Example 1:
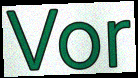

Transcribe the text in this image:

Vor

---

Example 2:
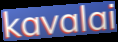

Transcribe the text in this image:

kavalai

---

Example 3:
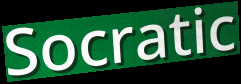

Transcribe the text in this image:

Socratic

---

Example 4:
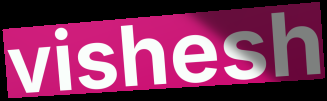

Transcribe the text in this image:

vishesh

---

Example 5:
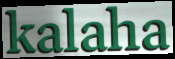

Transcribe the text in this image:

kalaha